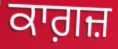
ਕਾਗ਼ਜ਼